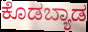
ಕೊಡಬ್ಯಾಡ